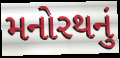
મનોરથનું